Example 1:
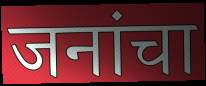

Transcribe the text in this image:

जनांचा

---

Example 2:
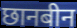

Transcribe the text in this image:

छानबीन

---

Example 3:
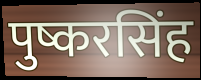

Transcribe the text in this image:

पुष्करसिंह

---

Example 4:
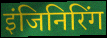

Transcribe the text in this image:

इंजिनिरिंग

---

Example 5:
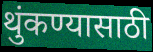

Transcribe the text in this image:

थुंकण्यासाठी